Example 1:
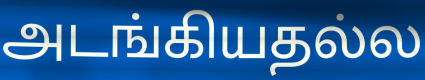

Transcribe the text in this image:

அடங்கியதல்ல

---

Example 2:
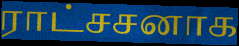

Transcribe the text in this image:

ராட்சசனாக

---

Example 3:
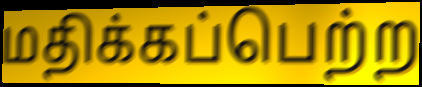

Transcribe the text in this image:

மதிக்கப்பெற்ற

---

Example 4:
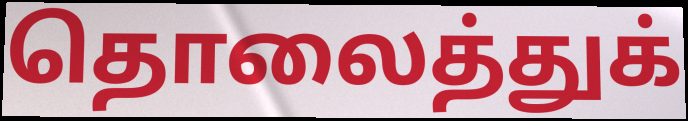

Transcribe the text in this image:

தொலைத்துக்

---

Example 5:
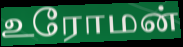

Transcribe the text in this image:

உரோமன்